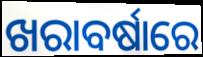
ଖରାବର୍ଷାରେ